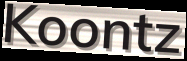
Koontz